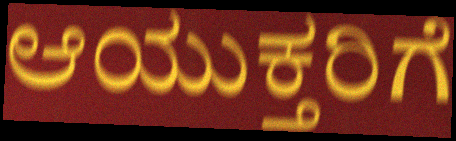
ಆಯುಕ್ತರಿಗೆ